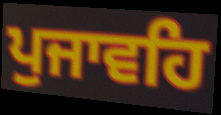
ਪੁਜਾਵਹਿ